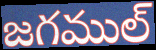
జగముల్